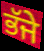
ਭੱਜੇ